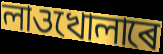
লাওখোলাৰে